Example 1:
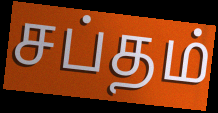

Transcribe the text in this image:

சப்தம்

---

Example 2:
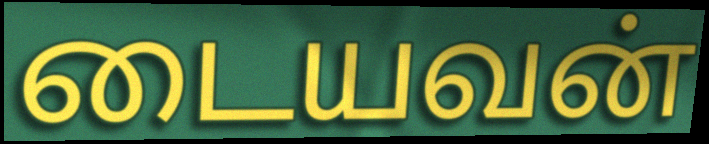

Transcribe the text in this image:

டையவன்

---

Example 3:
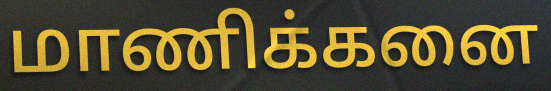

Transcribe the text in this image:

மாணிக்கனை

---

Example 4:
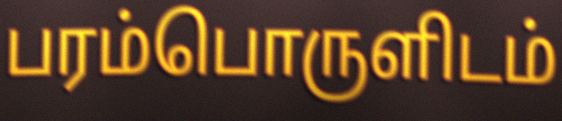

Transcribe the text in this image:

பரம்பொருளிடம்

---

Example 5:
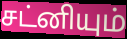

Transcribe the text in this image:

சட்னியும்